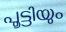
പൂട്ടിയും